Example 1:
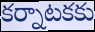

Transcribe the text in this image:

కర్నాటకకు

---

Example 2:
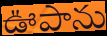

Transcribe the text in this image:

ఊపాను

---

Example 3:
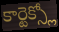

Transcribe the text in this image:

కార్టెక్స్లో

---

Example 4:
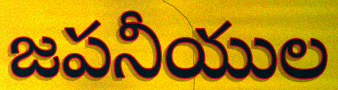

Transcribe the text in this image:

జపనీయుల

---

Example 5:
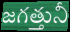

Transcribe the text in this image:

జగత్తునీ